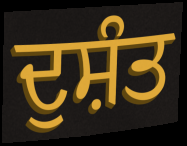
ਦੁਸ਼ੰਤ